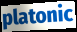
platonic